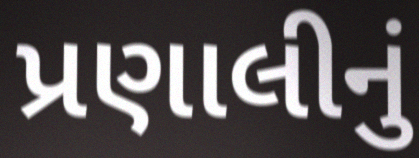
પ્રણાલીનું